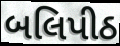
બલિપીઠ